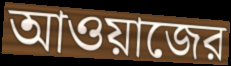
আওয়াজের